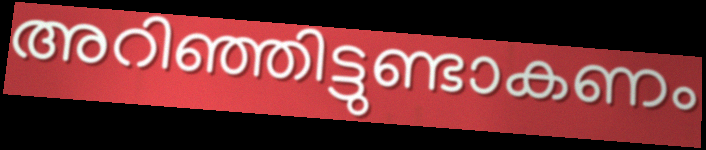
അറിഞ്ഞിട്ടുണ്ടാകണം